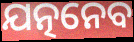
ଯତ୍ନନେବ